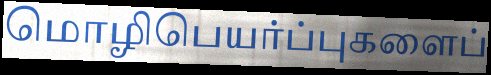
மொழிபெயர்ப்புகளைப்